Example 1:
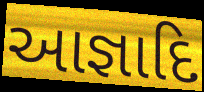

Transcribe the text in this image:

આજ્ઞાદિ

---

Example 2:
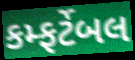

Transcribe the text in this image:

કમ્ફર્ટેબલ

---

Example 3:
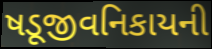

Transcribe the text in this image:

ષડૂજીવનિકાયની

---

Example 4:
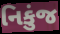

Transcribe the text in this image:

નિકુંજ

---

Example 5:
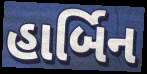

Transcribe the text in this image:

હાર્બિન